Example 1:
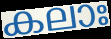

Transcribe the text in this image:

കലാഃ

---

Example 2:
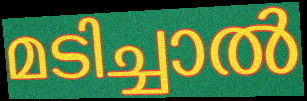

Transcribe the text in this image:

മടിച്ചാൽ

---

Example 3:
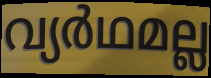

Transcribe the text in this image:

വ്യർഥമല്ല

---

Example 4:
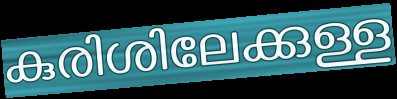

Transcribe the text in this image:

കുരിശിലേക്കുള്ള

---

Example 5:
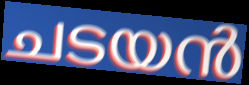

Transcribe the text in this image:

ചടയൻ